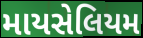
માયસેલિયમ